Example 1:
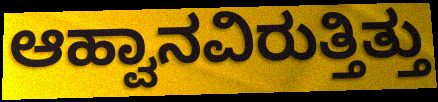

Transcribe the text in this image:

ಆಹ್ವಾನವಿರುತ್ತಿತ್ತು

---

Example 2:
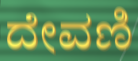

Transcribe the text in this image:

ದೇವಣಿ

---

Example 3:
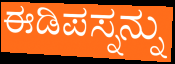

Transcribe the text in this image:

ಈಡಿಪಸ್ನನ್ನು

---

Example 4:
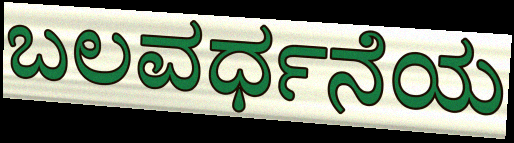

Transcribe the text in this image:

ಬಲವರ್ಧನೆಯ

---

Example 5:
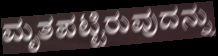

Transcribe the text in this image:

ಮೃತಪಟ್ಟಿರುವುದನ್ನು